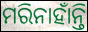
ମରିନାହାଁନ୍ତି